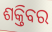
ଶକ୍ତିବର